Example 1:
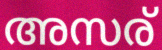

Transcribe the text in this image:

അസര്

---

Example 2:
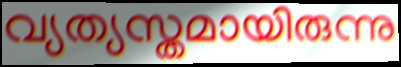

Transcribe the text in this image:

വ്യത്യസ്തമായിരുന്നു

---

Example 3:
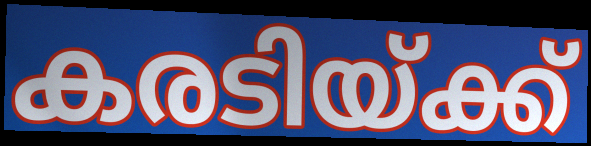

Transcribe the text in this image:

കരടിയ്ക്ക്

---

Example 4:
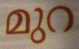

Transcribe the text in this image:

മുറ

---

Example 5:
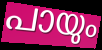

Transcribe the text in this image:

പായും